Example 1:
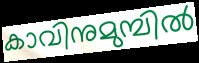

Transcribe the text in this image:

കാവിനുമുമ്പിൽ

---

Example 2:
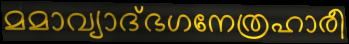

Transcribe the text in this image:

മമാവ്യാദ്ഭഗനേത്രഹാരീ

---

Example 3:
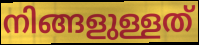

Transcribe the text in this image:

നിങ്ങളുള്ളത്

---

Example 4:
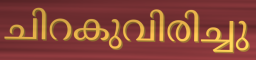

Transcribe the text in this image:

ചിറകുവിരിച്ചു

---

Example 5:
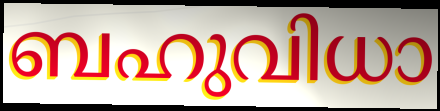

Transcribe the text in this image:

ബഹുവിധാ